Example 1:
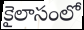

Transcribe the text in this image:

కైలాసంలో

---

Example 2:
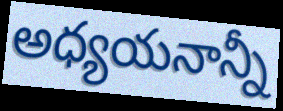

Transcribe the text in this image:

అధ్యయనాన్నీ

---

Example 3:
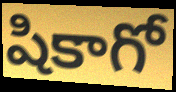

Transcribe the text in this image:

షికాగో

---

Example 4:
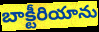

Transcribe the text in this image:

బాక్టీరియాను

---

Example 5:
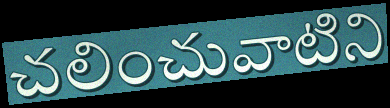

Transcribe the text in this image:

చలించువాటిని